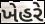
ખેહરે